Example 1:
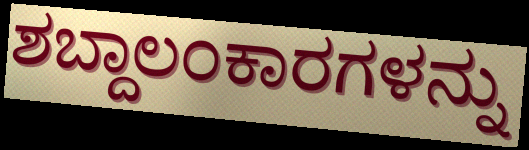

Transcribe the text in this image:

ಶಬ್ದಾಲಂಕಾರಗಳನ್ನು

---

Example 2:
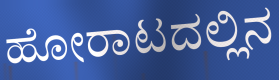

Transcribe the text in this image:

ಹೋರಾಟದಲ್ಲಿನ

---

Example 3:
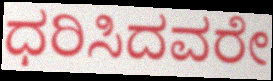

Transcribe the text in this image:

ಧರಿಸಿದವರೇ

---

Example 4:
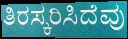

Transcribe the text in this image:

ತಿರಸ್ಕರಿಸಿದೆವು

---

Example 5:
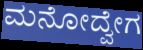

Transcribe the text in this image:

ಮನೋದ್ವೇಗ